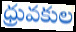
ధ్రువకుల